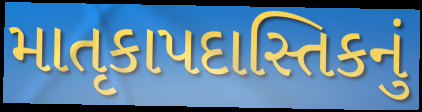
માતૃકાપદાસ્તિકનું